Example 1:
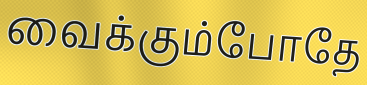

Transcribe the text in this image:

வைக்கும்போதே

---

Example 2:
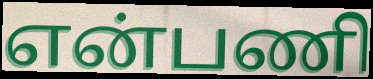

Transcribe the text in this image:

என்பணி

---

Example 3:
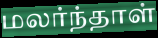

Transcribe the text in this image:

மலர்ந்தாள்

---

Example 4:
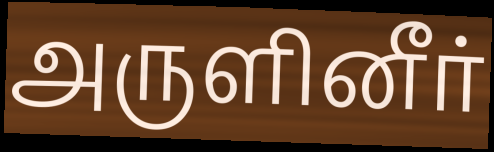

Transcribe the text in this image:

அருளினீர்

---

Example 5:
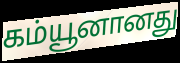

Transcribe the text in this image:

கம்யூனானது